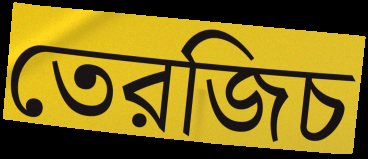
তেরজিচ